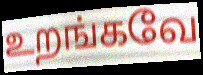
உறங்கவே